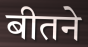
बीतने